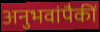
अनुभवांपैकीं